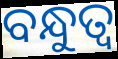
ବନ୍ଧୁତ୍ୱ